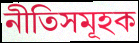
নীতিসমূহক